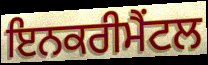
ਇਨਕਰੀਮੈਂਟਲ